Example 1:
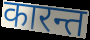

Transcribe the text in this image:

कारन्त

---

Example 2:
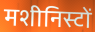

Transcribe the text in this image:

मशीनिस्टों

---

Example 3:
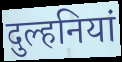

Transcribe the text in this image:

दुल्हनियां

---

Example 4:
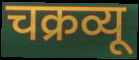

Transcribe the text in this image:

चक्रव्यू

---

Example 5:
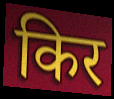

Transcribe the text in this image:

किर